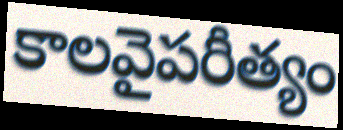
కాలవైపరీత్యం